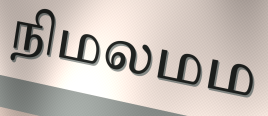
நிமலமம